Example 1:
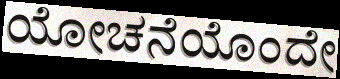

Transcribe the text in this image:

ಯೋಚನೆಯೊಂದೇ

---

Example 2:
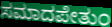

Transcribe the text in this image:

ಸಮಾದಪೇತುಂ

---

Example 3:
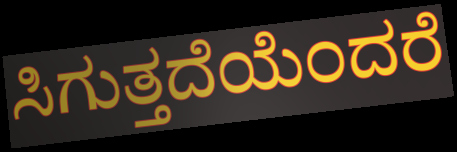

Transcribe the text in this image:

ಸಿಗುತ್ತದೆಯೆಂದರೆ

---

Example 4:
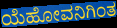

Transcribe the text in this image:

ಯೆಹೋವನಿಗಿಂತ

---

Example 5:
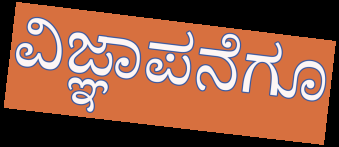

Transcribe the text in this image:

ವಿಜ್ಞಾಪನೆಗೂ